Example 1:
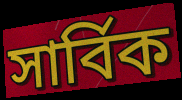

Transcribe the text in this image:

সার্বিক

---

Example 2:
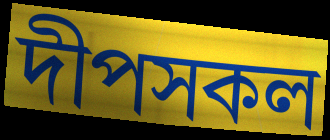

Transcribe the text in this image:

দীপসকল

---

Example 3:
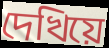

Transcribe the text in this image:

দেখিয়ে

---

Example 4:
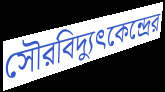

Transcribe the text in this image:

সৌরবিদ্যুৎকেন্দ্রের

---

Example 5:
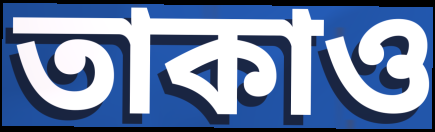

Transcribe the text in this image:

তাকাও